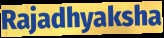
Rajadhyaksha